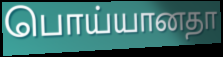
பொய்யானதா